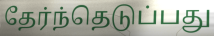
தேர்ந்தெடுப்பது